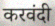
करवंदी